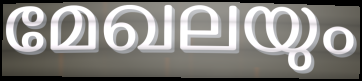
മേഖലയും